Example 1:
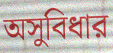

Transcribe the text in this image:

অসুবিধার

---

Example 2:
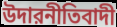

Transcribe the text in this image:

উদারনীতিবাদী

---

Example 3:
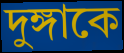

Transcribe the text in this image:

দুঙ্গাকে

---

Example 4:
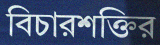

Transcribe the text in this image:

বিচারশক্তির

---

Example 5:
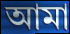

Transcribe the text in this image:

আমা